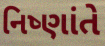
નિષ્ણાંતે